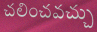
చలించవచ్చు